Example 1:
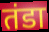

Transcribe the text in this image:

तंडा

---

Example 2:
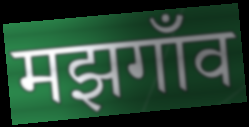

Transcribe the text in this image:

मझगाँव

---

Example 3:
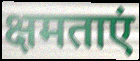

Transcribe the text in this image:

क्षमताएं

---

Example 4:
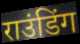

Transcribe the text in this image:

राउंडिंग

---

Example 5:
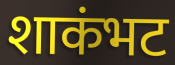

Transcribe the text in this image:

शाकंभट